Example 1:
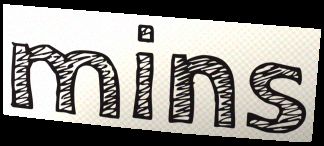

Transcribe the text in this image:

mins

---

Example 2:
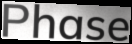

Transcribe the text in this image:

Phase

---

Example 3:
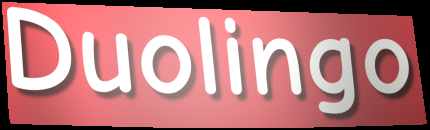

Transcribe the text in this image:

Duolingo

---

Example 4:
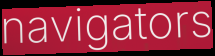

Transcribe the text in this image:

navigators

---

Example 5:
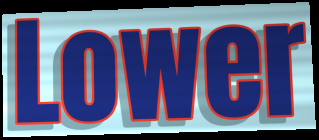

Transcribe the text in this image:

Lower